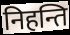
निहन्ति